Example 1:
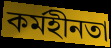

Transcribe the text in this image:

কর্মহীনতা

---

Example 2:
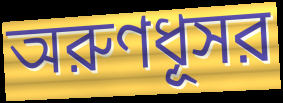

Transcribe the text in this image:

অরুণধূসর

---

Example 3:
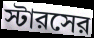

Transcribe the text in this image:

স্টারসের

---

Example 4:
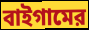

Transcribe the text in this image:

বাইগামের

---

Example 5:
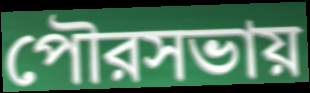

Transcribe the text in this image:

পৌরসভায়